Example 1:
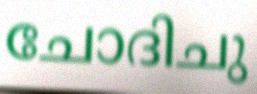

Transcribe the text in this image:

ചോദിചു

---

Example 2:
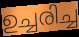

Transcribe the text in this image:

ഉച്ചരിച്ച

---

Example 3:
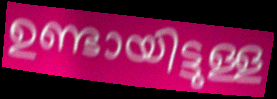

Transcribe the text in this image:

ഉണ്ടായിട്ടുള്ള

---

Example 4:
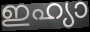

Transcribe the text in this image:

ഇഹ്യാ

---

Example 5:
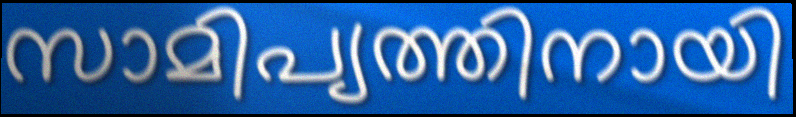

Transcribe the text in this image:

സാമിപ്യത്തിനായി